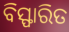
ବିସ୍ଫାରିତ